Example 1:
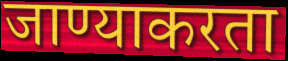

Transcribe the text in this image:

जाण्याकरता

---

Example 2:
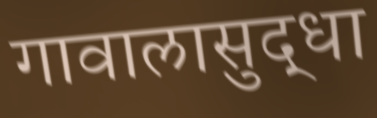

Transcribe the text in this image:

गावालासुद्धा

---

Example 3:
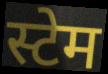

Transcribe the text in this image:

स्टेम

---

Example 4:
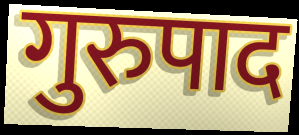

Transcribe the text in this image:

गुरुपाद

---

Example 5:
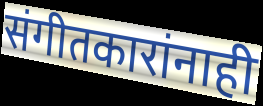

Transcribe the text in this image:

संगीतकारांनाही